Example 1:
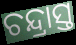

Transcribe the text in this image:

ଚନ୍ଦ୍ରାସ୍ତ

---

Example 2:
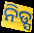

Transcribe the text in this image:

ନିଡ୍ସ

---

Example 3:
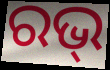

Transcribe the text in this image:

ରଭ୍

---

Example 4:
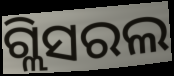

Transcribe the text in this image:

ଗ୍ଲିସରଲ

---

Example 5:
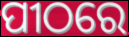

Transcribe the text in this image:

ପୀଠରେ